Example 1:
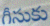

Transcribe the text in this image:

గీసుకు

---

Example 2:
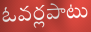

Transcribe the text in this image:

ఓవర్లపాటు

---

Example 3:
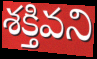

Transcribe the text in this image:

శక్తివని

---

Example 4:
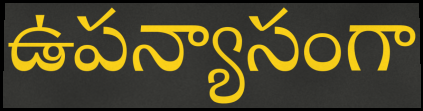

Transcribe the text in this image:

ఉపన్యాసంగా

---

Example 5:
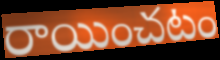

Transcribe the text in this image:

రాయించటం